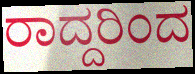
ರಾದ್ದರಿಂದ